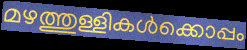
മഴത്തുള്ളികൾക്കൊപ്പം